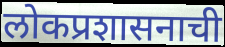
लोकप्रशासनाची